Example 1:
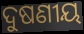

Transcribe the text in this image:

ଦୁଷଣୀୟ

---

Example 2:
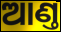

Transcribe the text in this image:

ଆଣ୍ତ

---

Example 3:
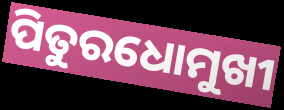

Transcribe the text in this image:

ପିତୁରଧୋମୁଖୀ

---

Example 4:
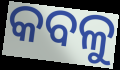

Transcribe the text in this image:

କବଳୁ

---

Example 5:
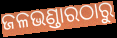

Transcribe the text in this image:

ଜଳଭଣ୍ଡାରଠାରୁ